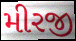
મીરજી